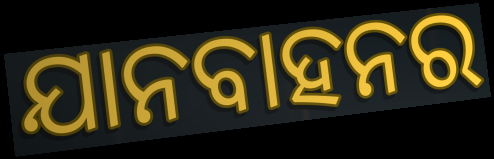
ଯାନବାହନର